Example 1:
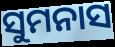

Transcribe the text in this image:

ସୁମନାସ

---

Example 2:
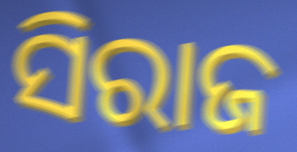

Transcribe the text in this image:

ସିରାଜ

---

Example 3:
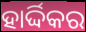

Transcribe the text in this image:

ହାର୍ଦ୍ଦିକର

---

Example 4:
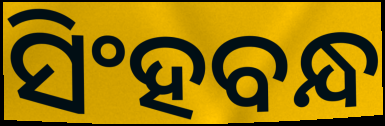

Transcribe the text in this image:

ସିଂହବନ୍ଧ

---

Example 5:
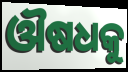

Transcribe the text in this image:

ଔଷଧକୁ